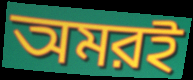
অমরই